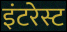
इंटरेस्ट